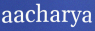
aacharya